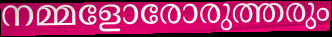
നമ്മളോരോരുത്തരും